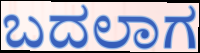
ಬದಲಾಗ